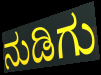
ನುಡಿಗು